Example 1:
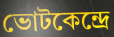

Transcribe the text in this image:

ভোটকেন্দ্রে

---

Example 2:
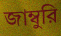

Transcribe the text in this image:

জাম্বুরি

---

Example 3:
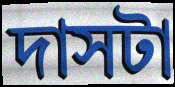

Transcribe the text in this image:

দাসটা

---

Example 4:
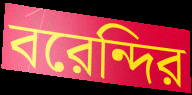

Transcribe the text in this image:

বরেন্দির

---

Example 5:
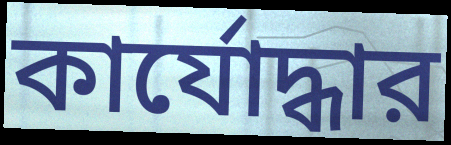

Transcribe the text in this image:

কার্যোদ্ধার